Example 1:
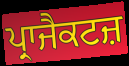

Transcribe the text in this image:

ਪ੍ਰਾਜੈਕਟਜ਼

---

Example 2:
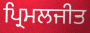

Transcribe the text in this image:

ਪ੍ਰਿਮਲਜੀਤ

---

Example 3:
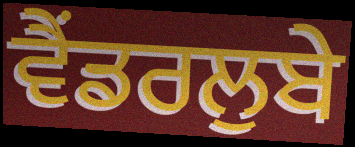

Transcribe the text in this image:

ਵੈਂਡਰਲੁਬੇ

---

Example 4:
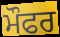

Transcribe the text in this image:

ਮੌਫਰ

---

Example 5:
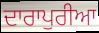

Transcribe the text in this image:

ਦਾਰਾਪੁਰੀਆ